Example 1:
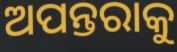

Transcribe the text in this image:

ଅପନ୍ତରାକୁ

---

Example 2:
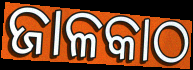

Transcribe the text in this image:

ଜାଳକାଠ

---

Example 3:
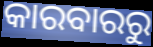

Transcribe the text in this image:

କାରବାରରୁ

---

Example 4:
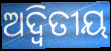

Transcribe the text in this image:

ଅଦ୍ୱିତୀୟ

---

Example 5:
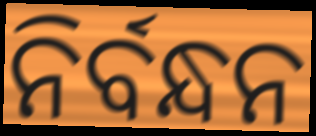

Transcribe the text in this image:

ନିର୍ବନ୍ଧନ